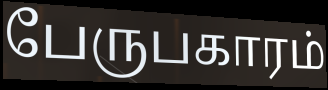
பேருபகாரம்